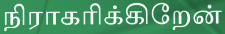
நிராகரிக்கிறேன்